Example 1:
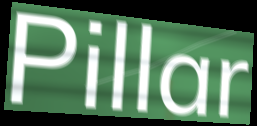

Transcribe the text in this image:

Pillar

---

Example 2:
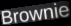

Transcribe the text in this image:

Brownie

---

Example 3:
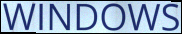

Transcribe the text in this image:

WINDOWS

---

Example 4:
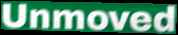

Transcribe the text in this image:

Unmoved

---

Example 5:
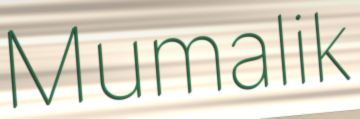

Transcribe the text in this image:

Mumalik